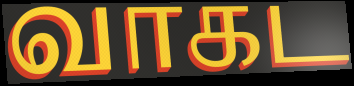
வாகட